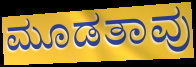
ಮೂಡತಾವು